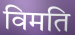
विमति